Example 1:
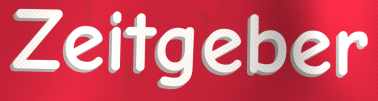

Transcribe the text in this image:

Zeitgeber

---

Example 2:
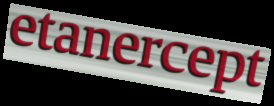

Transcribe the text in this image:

etanercept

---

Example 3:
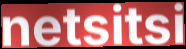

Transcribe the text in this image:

netsitsi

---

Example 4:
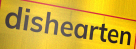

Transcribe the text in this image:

dishearten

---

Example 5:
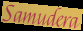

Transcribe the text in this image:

Samudera